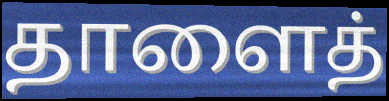
தாளைத்